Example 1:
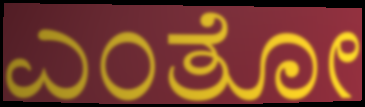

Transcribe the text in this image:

ಎಂತೋ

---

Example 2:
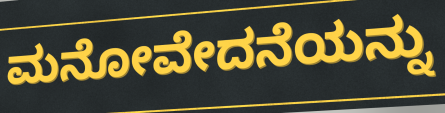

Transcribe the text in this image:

ಮನೋವೇದನೆಯನ್ನು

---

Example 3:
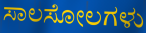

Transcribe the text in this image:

ಸಾಲಸೋಲಗಳು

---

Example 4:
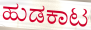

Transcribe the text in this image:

ಹುಡಕಾಟ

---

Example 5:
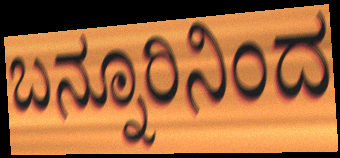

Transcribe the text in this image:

ಬನ್ನೂರಿನಿಂದ